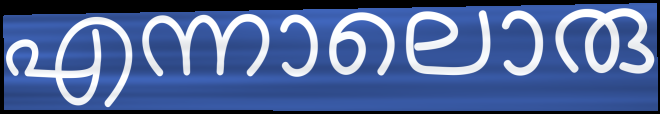
എന്നാലൊരു